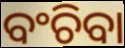
ବଂଚିବା